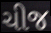
ચીજ